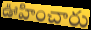
ఊహించారు